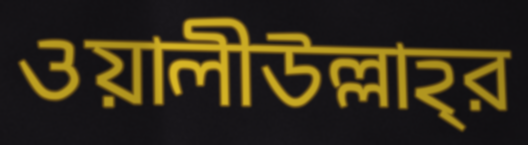
ওয়ালীউল্লাহ্‌র